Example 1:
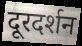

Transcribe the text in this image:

दूरदर्शन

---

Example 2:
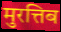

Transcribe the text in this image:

मुरत्तिब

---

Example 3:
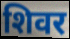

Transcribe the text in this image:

शिवर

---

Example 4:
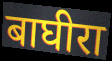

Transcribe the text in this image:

बाघीरा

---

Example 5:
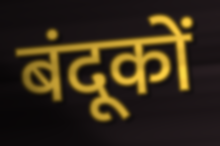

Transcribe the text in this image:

बंदूकों